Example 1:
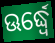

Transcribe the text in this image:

ଊର୍ଦ୍ଧ୍ୱେ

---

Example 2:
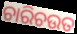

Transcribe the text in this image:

ଚାରିଚଉତ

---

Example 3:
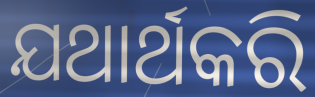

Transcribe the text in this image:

ଯଥାର୍ଥକରି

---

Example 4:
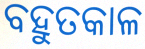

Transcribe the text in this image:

ବହୁତକାଳ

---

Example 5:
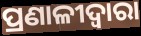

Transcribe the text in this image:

ପ୍ରଣାଳୀଦ୍ୱାରା